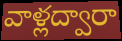
వాళ్లద్వారా